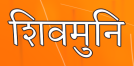
शिवमुनि